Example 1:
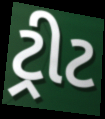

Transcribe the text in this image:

ટ્રીટ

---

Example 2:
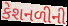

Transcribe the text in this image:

કેશનળીની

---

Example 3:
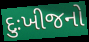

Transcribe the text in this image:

દુઃખીજનો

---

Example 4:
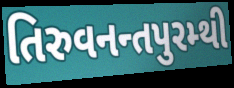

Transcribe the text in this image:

તિરુવનન્તપુરમ્થી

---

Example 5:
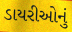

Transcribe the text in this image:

ડાયરીઓનું